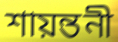
শায়ন্তনী